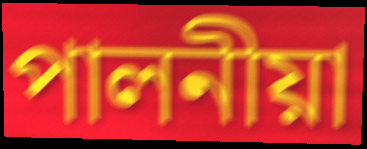
পালনীয়া